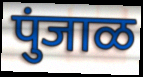
पुंजाळ